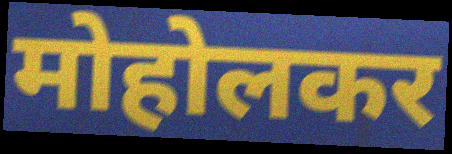
मोहोलकर